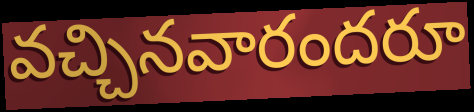
వచ్చినవారందరూ